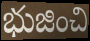
భుజించి